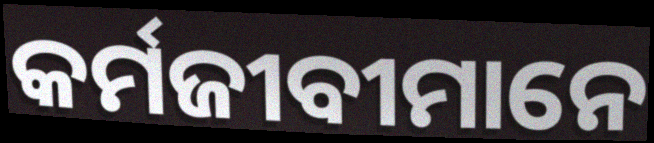
କର୍ମଜୀବୀମାନେ